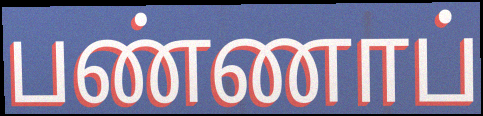
பண்ணாப்